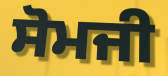
ਸੋਮਜੀ